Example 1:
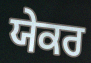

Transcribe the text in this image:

ਯੇਕਰ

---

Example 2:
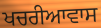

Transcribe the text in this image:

ਖਚਰੀਆਵਾਸ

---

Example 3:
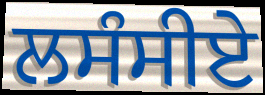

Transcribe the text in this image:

ਲਸੰਸੀਏ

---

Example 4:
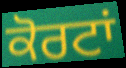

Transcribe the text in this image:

ਕੋਰਟਾਂ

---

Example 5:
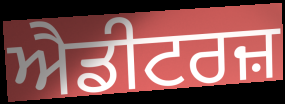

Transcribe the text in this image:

ਐਡੀਟਰਜ਼